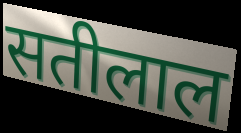
सतीलाल